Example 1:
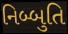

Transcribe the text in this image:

નિબ્બુતિ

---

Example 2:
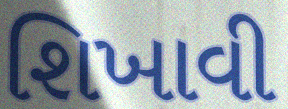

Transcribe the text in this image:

શિખાવી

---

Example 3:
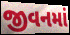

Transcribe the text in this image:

જીવનમાં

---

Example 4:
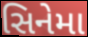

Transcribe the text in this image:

સિનેમા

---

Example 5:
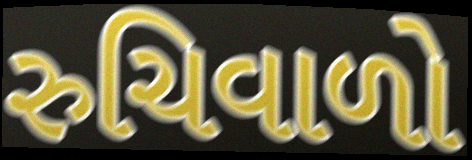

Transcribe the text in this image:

રુચિવાળો